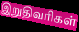
இறுதிவரிகள்